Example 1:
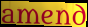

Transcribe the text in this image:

amend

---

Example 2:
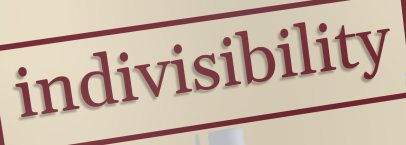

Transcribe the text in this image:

indivisibility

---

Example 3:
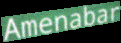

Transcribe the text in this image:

Amenabar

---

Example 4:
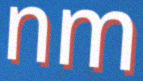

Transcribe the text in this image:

nm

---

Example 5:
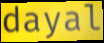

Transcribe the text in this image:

dayal